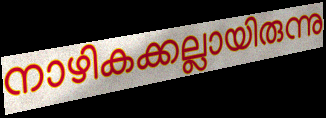
നാഴികക്കല്ലായിരുന്നു